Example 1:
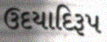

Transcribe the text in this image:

ઉદયાદિરૂપ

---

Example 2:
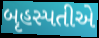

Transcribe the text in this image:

બૃહસ્પતીએ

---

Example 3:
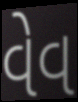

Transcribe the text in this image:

વેવ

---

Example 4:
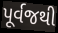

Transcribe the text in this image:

પૂર્વજથી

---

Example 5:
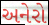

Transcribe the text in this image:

અનેરો